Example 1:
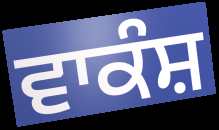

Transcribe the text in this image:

ਵਾਕੰਸ਼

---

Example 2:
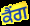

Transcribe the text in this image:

ਕੈਂਗ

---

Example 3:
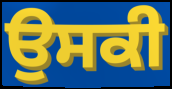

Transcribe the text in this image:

ਉਸਕੀ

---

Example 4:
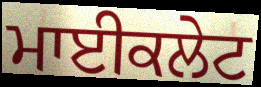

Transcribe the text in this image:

ਮਾਈਕਲੇਟ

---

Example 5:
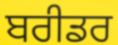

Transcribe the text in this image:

ਬਰੀਡਰ